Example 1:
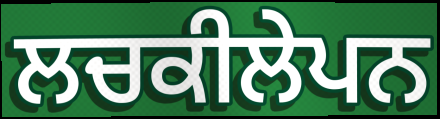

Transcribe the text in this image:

ਲਚਕੀਲੇਪਨ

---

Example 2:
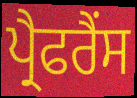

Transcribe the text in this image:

ਪ੍ਰੈਫਰੈਂਸ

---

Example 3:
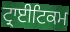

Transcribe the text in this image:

ਟ੍ਰਾਈਟਿਕਮ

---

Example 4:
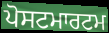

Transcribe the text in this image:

ਪੋਸਟਮਾਰਟਮ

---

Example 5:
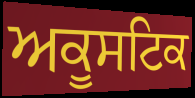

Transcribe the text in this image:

ਅਕੂਸਟਿਕ